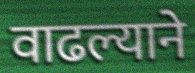
वाढल्याने